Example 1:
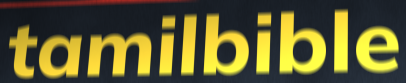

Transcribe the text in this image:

tamilbible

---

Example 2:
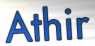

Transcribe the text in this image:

Athir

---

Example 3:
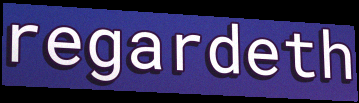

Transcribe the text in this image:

regardeth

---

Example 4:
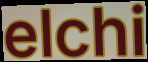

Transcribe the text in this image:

elchi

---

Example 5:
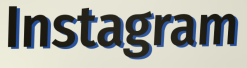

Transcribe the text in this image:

Instagram